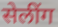
सेलींग